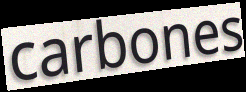
carbones